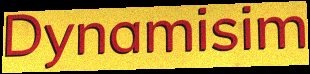
Dynamisim